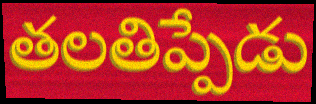
తలతిప్పేడు